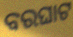
ବରଘାଟ